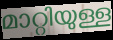
മാറ്റിയുള്ള